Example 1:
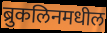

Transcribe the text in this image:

ब्रुकलिनमधील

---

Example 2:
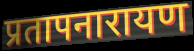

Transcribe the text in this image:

प्रतापनारायण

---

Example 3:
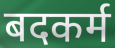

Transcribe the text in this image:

बदकर्म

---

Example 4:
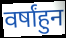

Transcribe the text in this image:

वर्षांहुन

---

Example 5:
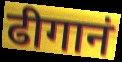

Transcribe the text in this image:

ढीगानं